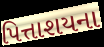
પિત્તાશયના